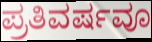
ಪ್ರತಿವರ್ಷವೂ